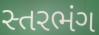
સ્તરભંગ